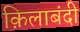
क़िलाबंदी